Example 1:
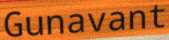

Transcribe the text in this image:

Gunavant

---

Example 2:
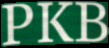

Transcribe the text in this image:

PKB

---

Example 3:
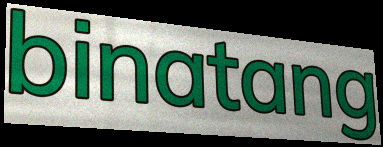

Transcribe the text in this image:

binatang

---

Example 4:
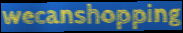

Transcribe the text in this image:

wecanshopping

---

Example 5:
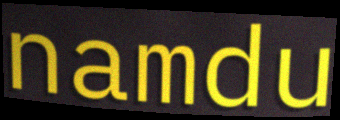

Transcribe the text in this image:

namdu